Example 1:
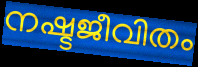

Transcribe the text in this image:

നഷ്ടജീവിതം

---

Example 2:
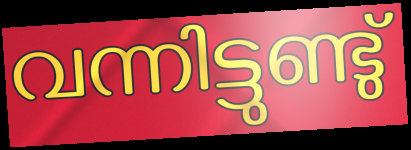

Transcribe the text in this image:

വന്നിട്ടുണ്ടു്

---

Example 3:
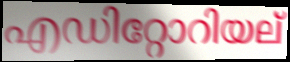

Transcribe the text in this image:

എഡിറ്റോറിയല്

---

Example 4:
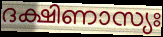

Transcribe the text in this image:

ദക്ഷിണാസ്യഃ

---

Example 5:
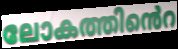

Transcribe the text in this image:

ലോകത്തിൻെറ